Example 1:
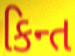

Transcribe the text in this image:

કિન્ત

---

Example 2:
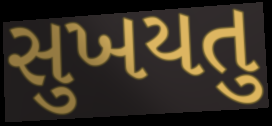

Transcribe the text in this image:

સુખયતુ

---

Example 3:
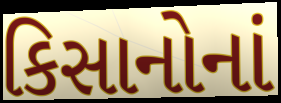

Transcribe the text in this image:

કિસાનોનાં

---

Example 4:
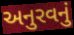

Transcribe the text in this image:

અનુરવનું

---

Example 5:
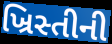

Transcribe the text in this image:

ખ્રિસ્તીની